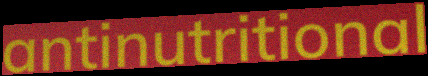
antinutritional